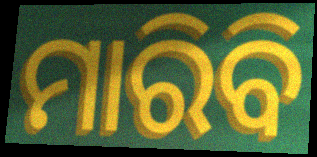
ମାରିବି